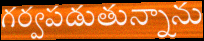
గర్వపడుతున్నాను